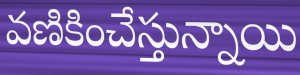
వణికించేస్తున్నాయి